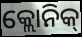
କ୍ଲୋନିକ୍